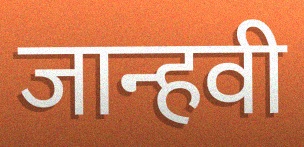
जान्‍हवी